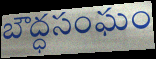
బౌద్ధసంఘం